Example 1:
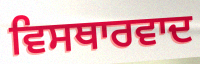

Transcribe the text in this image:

ਵਿਸਥਾਰਵਾਦ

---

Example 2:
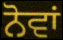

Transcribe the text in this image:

ਨੋਵਾਂ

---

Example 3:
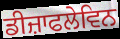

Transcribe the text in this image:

ਡੀਜ਼ਾਫਲੇਵਿਨ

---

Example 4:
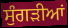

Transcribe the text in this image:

ਸੁੰਗੜੀਆਂ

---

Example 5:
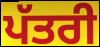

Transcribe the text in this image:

ਪੱਤਰੀ